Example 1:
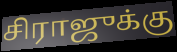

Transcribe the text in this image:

சிராஜுக்கு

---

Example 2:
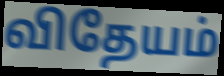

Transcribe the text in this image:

விதேயம்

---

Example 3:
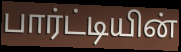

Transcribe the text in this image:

பார்ட்டியின்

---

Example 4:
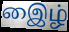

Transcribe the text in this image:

இைழ்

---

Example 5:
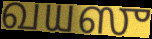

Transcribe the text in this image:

வயஸு